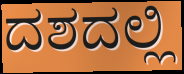
ದಶದಲ್ಲಿ